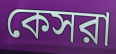
কেসরা